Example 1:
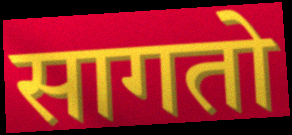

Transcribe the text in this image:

सागतो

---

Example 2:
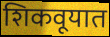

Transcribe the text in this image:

शिकवूयात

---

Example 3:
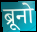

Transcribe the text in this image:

ब्रूनो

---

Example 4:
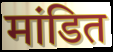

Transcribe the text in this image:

मांडित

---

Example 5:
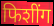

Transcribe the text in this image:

फिशींग